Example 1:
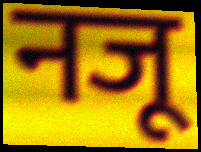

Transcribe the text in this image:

नजू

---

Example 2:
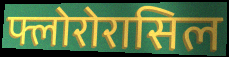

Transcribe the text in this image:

फ्लोरोरासिल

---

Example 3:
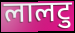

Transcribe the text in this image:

लालटु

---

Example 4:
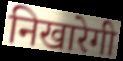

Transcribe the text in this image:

निखारेगी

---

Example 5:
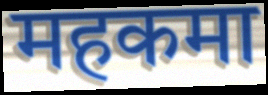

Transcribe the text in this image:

महकमा